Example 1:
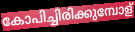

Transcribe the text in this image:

കോപിച്ചിരിക്കുമ്പോള്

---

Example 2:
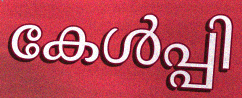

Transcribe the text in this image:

കേൾപ്പി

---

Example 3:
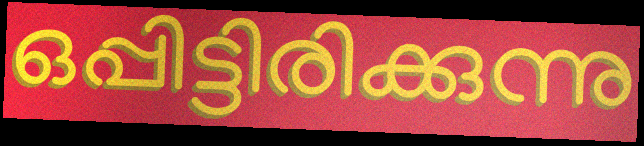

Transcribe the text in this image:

ഒപ്പിട്ടിരിക്കുന്നു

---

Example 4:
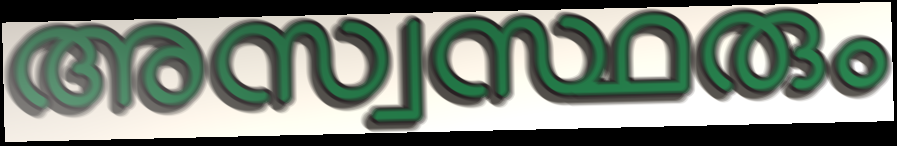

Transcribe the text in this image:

അസ്വസ്ഥരും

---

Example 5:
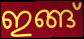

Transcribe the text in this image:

ഇങ്ങ്